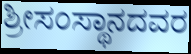
ಶ್ರೀಸಂಸ್ಥಾನದವರ